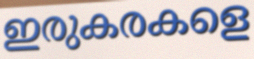
ഇരുകരകളെ